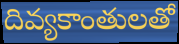
దివ్యకాంతులతో